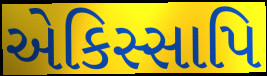
એકિસ્સાપિ